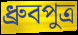
ধ্রুবপুত্র